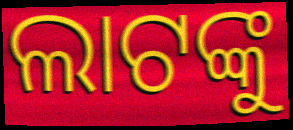
ଲାଟଙ୍କୁ